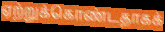
ஏற்றுக்கொண்டதாகக்